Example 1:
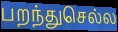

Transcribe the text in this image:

பறந்துசெல்ல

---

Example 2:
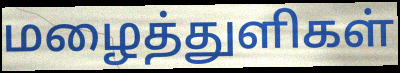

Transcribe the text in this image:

மழைத்துளிகள்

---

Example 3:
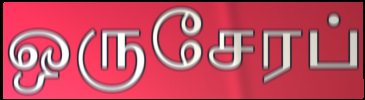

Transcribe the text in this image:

ஒருசேரப்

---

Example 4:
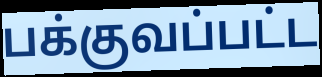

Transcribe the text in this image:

பக்குவப்பட்ட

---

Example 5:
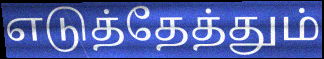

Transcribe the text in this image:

எடுத்தேத்தும்